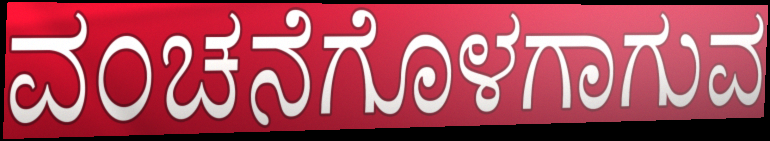
ವಂಚನೆಗೊಳಗಾಗುವ